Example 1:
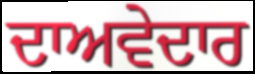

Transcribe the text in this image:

ਦਾਅਵੇਦਾਰ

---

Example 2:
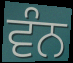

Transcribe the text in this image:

ਵੰਨ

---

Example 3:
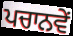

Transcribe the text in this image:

ਪਚਾਨਵੇਂ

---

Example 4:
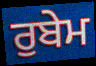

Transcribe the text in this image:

ਰੁਬੇਮ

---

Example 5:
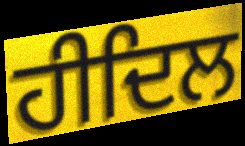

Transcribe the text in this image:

ਹੀਦਿਲ